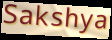
Sakshya